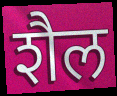
शैल